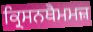
ਕ੍ਰਿਸਨਥੈਮਮਜ਼